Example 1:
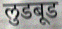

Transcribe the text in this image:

लुडबूड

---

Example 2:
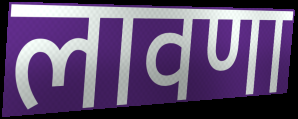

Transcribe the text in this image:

लावणा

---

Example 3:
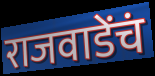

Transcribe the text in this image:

राजवाडेंचं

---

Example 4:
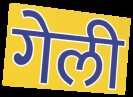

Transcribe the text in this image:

गेली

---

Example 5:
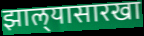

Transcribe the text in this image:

झाल्यासारखा